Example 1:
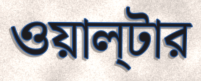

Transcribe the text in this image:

ওয়াল্‌টার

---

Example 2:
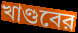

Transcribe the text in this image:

খাণ্ডবের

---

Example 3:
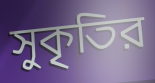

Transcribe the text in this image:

সুকৃতির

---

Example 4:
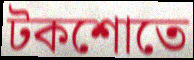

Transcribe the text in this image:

টকশোতে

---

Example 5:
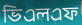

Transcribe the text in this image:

ভিএলএফ